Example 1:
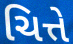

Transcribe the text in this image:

ચિત્તે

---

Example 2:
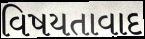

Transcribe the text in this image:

વિષયતાવાદ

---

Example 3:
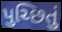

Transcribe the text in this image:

પુચ્છિતું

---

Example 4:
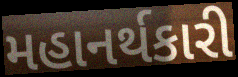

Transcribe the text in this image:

મહાનર્થકારી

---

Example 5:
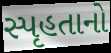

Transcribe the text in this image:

સ્પૃહતાનો